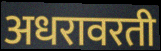
अधरावरती